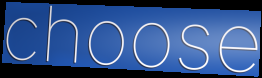
choose